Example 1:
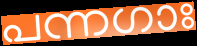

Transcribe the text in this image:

പന്നഗാഃ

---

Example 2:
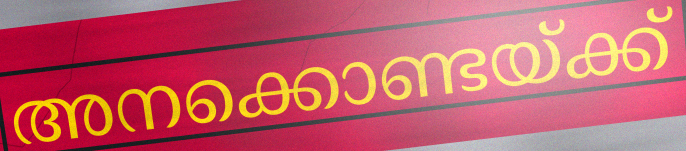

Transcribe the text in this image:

അനക്കൊണ്ടയ്ക്ക്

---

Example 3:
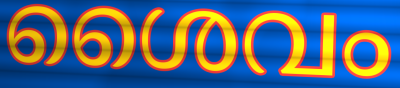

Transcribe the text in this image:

ശൈവം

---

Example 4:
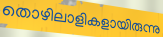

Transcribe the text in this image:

തൊഴിലാളികളായിരുന്നു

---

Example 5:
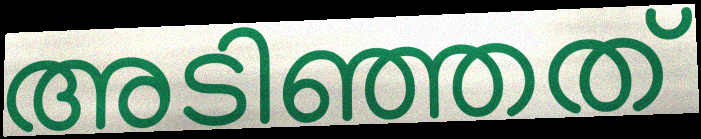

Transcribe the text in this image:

അടിഞ്ഞത്